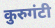
कुरुगंटी